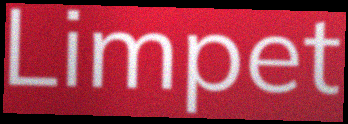
Limpet